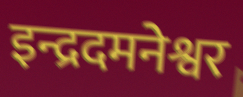
इन्द्रदमनेश्वर